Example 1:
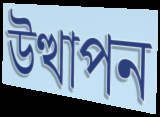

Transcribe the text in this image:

উত্থাপন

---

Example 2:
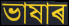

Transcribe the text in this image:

ভাষাৰ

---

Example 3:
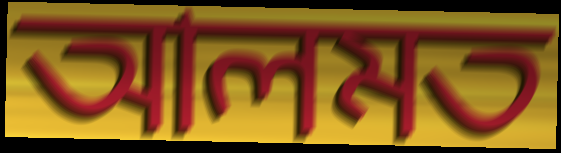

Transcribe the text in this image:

আলমত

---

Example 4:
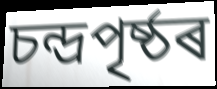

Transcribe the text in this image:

চন্দ্ৰপৃষ্ঠৰ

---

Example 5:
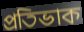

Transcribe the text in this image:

প্ৰতিভাক